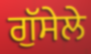
ਗੁੱਸੇਲੇ